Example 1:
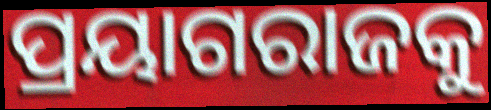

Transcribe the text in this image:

ପ୍ରୟାଗରାଜକୁ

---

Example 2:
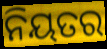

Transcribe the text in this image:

ନିୟତର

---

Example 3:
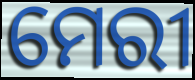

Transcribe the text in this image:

ମେରୀ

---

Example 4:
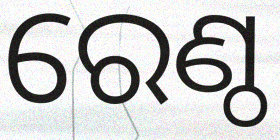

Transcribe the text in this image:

ରେଣ୍ଠ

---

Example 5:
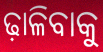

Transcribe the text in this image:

ଢ଼ାଳିବାକୁ